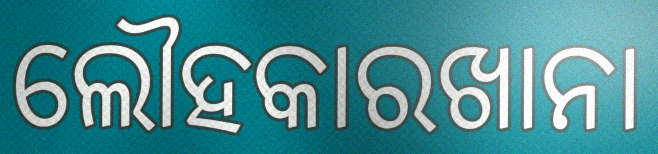
ଲୌହକାରଖାନା